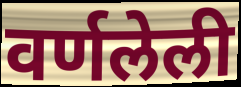
वर्णलेली